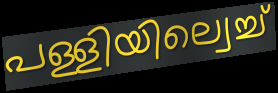
പള്ളിയില്വെച്ച്